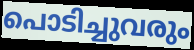
പൊടിച്ചുവരും